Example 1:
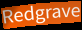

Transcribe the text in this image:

Redgrave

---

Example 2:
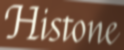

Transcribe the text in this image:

Histone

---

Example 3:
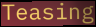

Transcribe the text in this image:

Teasing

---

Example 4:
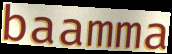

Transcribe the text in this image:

baamma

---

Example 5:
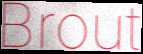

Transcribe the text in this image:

Brout